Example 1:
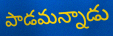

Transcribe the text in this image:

పాడమన్నాడు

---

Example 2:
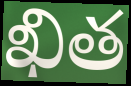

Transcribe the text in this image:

ఖిత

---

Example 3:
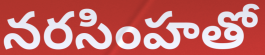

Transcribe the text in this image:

నరసింహతో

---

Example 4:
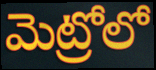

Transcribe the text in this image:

మెట్రోలో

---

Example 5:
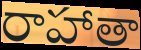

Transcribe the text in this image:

రాహాతా